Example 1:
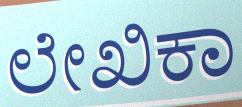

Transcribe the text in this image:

ಲೇಖಿಕಾ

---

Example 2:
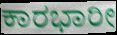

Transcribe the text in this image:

ಕಾರಭಾರೀ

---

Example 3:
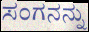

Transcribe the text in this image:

ಸಂಗನನ್ನು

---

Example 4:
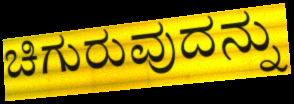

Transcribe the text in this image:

ಚಿಗುರುವುದನ್ನು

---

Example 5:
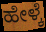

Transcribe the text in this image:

ಹೇಳ್ಕೆ